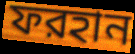
ফরহান